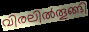
വിരലിൽതൂങ്ങി